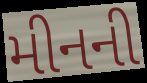
મીનની